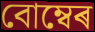
বোম্বেৰ